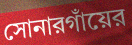
সোনারগাঁয়ের